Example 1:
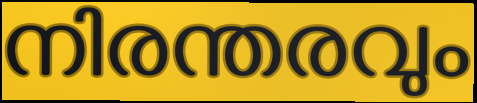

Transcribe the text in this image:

നിരന്തരവും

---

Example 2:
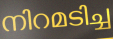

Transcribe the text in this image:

നിറമടിച്ച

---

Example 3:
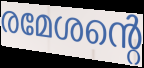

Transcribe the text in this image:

രമേശന്റെ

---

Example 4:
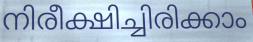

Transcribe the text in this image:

നിരീക്ഷിച്ചിരിക്കാം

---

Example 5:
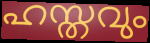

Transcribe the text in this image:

ഹസ്തവും